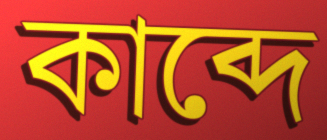
কাব্দে